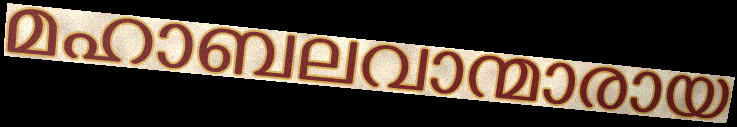
മഹാബലവാന്മാരായ